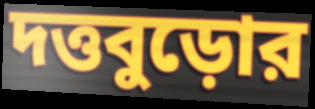
দত্তবুড়োর